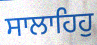
ਸਾਲਾਹਿਹੁ